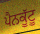
ਪੈਨਕੂੱਟੂ